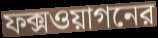
ফক্সওয়াগনের